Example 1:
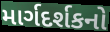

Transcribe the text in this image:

માર્ગદર્શકનો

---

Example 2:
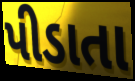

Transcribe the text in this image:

પીડાતા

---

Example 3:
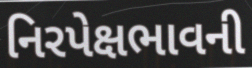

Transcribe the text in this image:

નિરપેક્ષભાવની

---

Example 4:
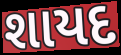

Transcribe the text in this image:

શાયદ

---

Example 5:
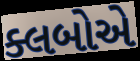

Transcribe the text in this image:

ક્લબોએ